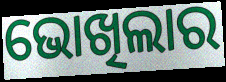
ଭୋଖିଲାର